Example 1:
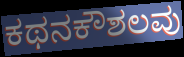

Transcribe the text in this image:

ಕಥನಕೌಶಲವು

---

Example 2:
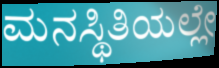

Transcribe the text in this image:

ಮನಸ್ಥಿತಿಯಲ್ಲೇ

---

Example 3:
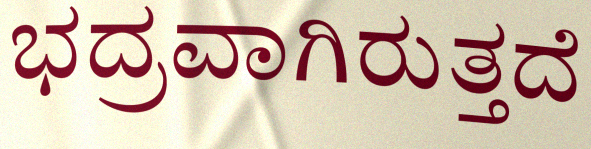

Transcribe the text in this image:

ಭದ್ರವಾಗಿರುತ್ತದೆ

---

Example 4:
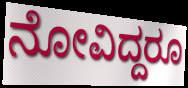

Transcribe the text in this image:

ನೋವಿದ್ದರೂ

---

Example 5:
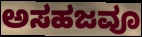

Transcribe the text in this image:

ಅಸಹಜವೂ